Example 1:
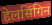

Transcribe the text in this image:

हेलसिंगिन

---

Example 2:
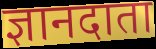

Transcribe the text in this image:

ज्ञानदाता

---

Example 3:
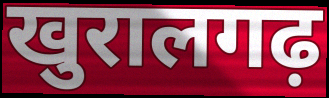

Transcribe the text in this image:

खुरालगढ़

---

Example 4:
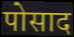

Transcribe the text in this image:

पोसाद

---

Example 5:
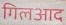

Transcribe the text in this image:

गिलआद